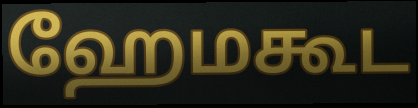
ஹேமகூட